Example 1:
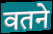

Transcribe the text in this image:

वतने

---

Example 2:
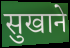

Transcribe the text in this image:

सुखाने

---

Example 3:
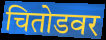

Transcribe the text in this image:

चितोडवर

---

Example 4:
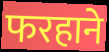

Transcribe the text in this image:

फरहाने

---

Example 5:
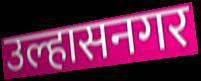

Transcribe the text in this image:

उल्हासनगर